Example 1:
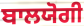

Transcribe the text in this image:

ਬਾਲਯੋਗੀ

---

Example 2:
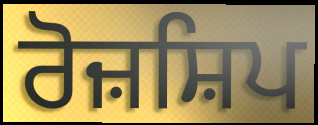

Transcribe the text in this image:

ਰੋਜ਼ਸ਼ਿਪ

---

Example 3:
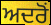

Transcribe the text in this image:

ਅਦਰੋਂ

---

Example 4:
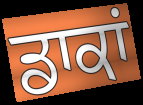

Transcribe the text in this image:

ਡਾਕਾਂ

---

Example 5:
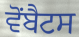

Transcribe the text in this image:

ਵੋਂਬੈਟਸ